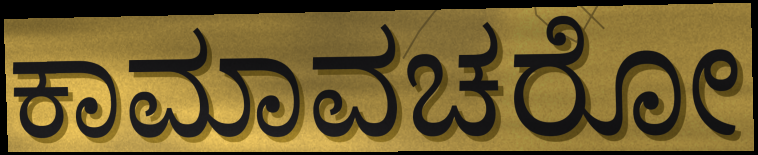
ಕಾಮಾವಚರೋ